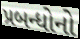
પ્રબન્ધોનો